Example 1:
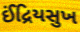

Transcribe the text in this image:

ઈંદ્રિયસુખ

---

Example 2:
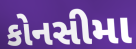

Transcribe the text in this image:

કોનસીમા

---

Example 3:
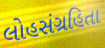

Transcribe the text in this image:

લોહસંગ્રહિતા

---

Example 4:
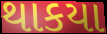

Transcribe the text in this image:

થાકયા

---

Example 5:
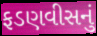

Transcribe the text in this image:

ફડણવીસનું